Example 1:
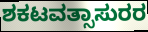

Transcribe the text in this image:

ಶಕಟವತ್ಸಾಸುರರ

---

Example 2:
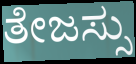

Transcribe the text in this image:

ತೇಜಸ್ಸು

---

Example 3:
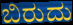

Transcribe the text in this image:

ಬಿರುದು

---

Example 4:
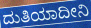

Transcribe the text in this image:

ದುತಿಯಾದೀನಿ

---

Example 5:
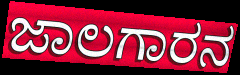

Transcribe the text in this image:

ಜಾಲಗಾರನ